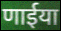
णाईया